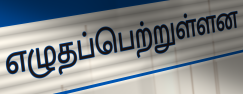
எழுதப்பெற்றுள்ளன